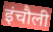
इंचौली